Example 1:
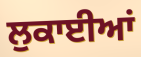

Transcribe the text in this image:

ਲੁਕਾਈਆਂ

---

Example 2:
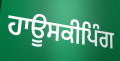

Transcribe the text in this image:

ਹਾਊਸਕੀਪਿੰਗ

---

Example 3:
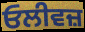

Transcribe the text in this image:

ਓਲੀਵਜ਼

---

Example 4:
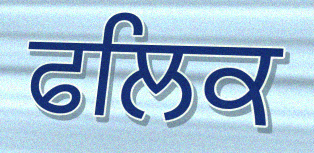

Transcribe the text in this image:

ਫਲਿਕ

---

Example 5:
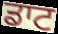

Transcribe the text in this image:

ਡਾਟ